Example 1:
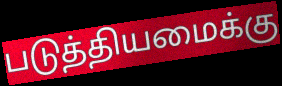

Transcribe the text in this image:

படுத்தியமைக்கு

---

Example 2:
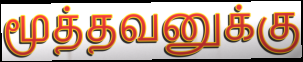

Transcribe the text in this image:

மூத்தவனுக்கு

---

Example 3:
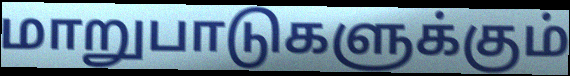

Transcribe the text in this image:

மாறுபாடுகளுக்கும்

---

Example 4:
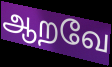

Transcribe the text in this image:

ஆறவே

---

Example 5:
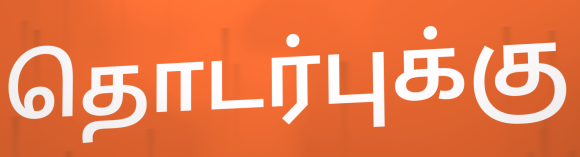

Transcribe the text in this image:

தொடர்புக்கு